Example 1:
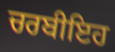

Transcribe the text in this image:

ਚਰਬੀਇਹ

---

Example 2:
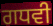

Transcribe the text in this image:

ਗਧਵੀ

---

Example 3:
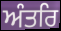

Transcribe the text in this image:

ਅੰਤਰਿ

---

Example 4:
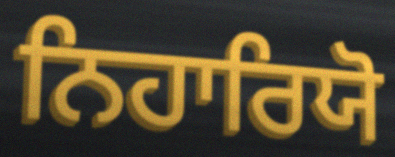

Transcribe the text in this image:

ਨਿਹਾਰਿਯੋ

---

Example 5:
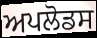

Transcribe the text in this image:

ਅਪਲੋਡਸ